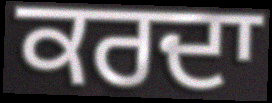
ਕਰਦਾ